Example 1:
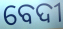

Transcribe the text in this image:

ବେଦୀ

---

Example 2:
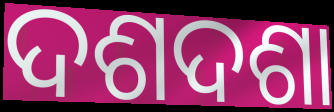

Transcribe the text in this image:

ଦଶଦଶା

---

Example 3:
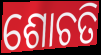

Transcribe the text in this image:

ଶୋଚତି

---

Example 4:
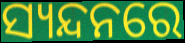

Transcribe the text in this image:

ସ୍ୟନ୍ଦନରେ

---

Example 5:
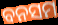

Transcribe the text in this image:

ବନସମ